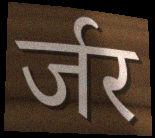
र्जर